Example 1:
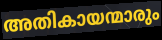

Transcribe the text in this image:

അതികായന്മാരും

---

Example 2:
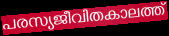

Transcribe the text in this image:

പരസ്യജീവിതകാലത്ത്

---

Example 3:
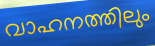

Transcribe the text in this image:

വാഹനത്തിലും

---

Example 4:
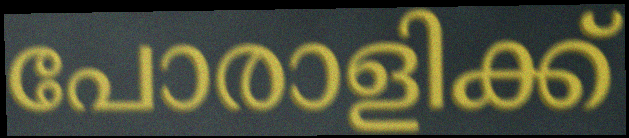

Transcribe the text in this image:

പോരാളിക്ക്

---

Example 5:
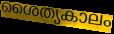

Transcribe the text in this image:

ശൈത്യകാലം